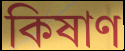
কিষাণ